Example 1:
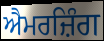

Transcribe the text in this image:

ਐਮਰਜ਼ਿੰਗ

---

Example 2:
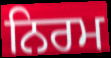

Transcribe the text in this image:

ਨਿਰਮ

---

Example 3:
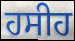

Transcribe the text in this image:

ਹਸੀਹ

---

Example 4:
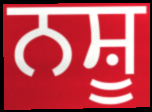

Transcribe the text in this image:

ਨਸ਼ੂ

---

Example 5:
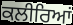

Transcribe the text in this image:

ਕਲੀਰਿਆਂ